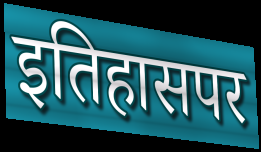
इतिहासपर